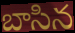
బాసిన